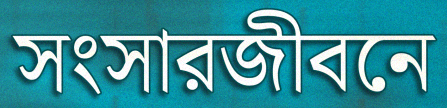
সংসারজীবনে